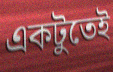
একটুতেই